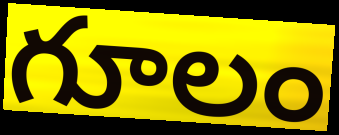
గూలం